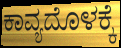
ಕಾವ್ಯದೊಳಕ್ಕೆ